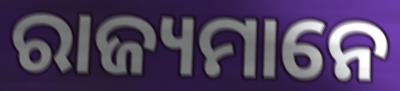
ରାଜ୍ୟମାନେ